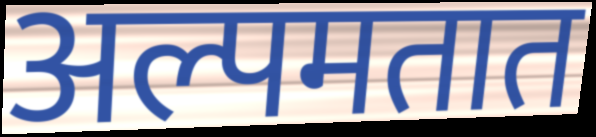
अल्पमतात